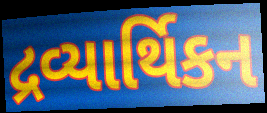
દ્રવ્યાર્થિકન